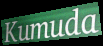
Kumuda